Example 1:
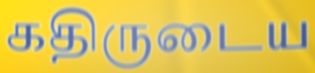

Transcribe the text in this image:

கதிருடைய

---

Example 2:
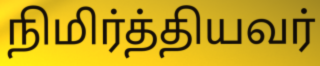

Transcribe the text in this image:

நிமிர்த்தியவர்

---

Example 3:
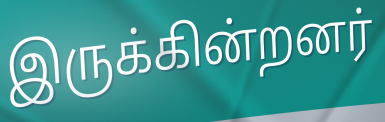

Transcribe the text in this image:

இருக்கின்றனர்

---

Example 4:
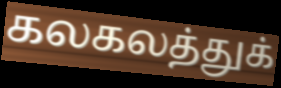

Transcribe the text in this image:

கலகலத்துக்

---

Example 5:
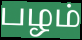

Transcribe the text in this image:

பழம்